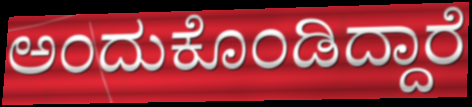
ಅಂದುಕೊಂಡಿದ್ದಾರೆ